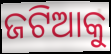
ଜଟିଆକୁ